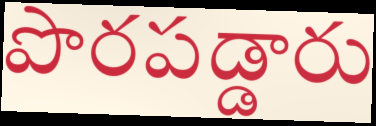
పొరపడ్డారు